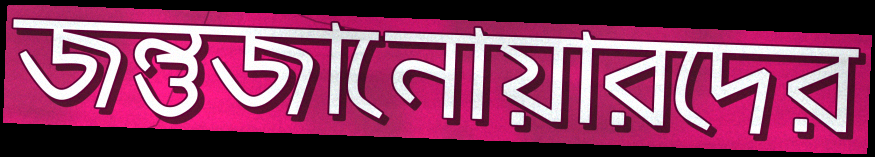
জন্তুজানোয়ারদের